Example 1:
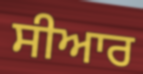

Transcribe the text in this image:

ਸੀਆਰ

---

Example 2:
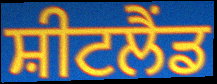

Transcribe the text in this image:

ਸ਼ੀਟਲੈਂਡ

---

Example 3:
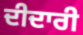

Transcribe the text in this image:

ਦੀਦਾਰੀ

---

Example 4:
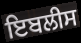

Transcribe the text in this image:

ਇਬਲੀਸ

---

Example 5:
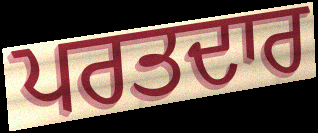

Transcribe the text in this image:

ਪਰਤਦਾਰ